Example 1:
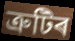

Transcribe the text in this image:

ত্ৰুটিৰ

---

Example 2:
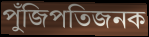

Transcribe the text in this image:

পুঁজিপতিজনক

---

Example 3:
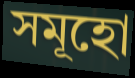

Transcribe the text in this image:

সমূহো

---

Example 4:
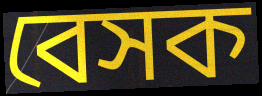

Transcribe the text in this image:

বেসক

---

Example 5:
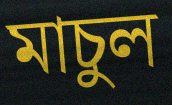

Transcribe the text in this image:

মাচুল